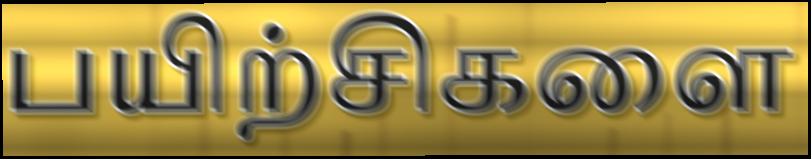
பயிற்சிகளை